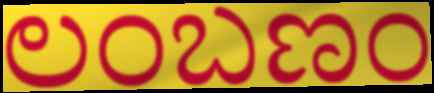
ಲಂಬಣಂ